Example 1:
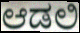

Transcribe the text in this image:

ಆಡಲಿ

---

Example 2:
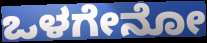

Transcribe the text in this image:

ಒಳಗೇನೋ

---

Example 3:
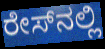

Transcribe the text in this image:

ರೇಸ್‍ನಲ್ಲಿ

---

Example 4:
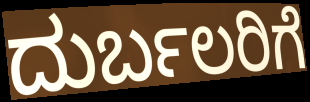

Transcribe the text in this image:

ದುರ್ಬಲರಿಗೆ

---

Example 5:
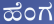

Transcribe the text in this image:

ಹೆಂಗ